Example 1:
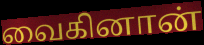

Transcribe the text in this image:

வைகினான்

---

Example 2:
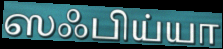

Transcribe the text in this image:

ஸஃபிய்யா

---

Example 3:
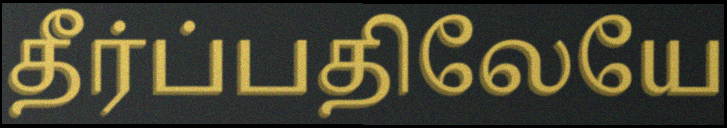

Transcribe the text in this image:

தீர்ப்பதிலேயே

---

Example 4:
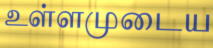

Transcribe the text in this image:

உள்ளமுடைய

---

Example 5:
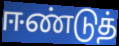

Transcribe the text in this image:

ஈண்டுத்